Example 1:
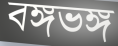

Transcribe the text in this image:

বঙ্গভঙ্গ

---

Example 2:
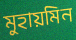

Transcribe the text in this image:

মুহায়মিন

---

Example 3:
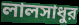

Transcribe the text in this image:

লালসাধুর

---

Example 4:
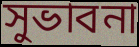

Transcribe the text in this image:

সুভাবনা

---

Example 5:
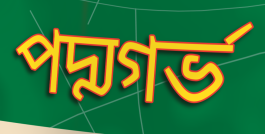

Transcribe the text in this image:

পদ্মগর্ভ